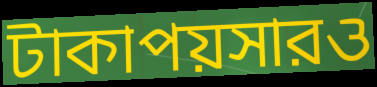
টাকাপয়সারও